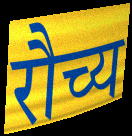
रौच्य